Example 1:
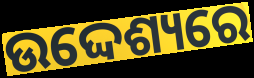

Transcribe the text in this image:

ଉଦ୍ଦେଶ୍ୟରେ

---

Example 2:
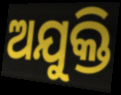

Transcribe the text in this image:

ଅଯୁକ୍ତି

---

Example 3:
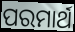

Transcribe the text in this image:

ପରମାର୍ଥ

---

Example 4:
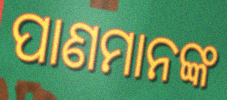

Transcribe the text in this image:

ପାଣମାନଙ୍କ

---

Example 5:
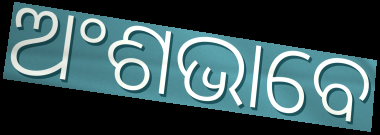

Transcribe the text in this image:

ଅଂଶଭାବେ